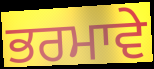
ਭਰਮਾਵੇ